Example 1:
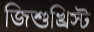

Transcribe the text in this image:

জিশুখ্রিস্ট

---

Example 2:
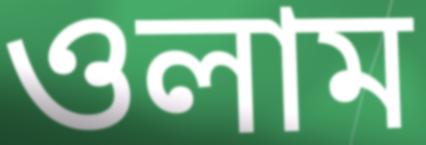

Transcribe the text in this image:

ওলাম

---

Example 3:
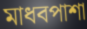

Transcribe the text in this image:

মাধবপাশা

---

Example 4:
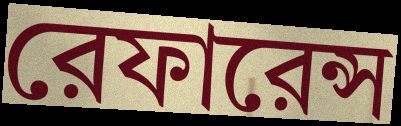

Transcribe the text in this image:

রেফারেন্স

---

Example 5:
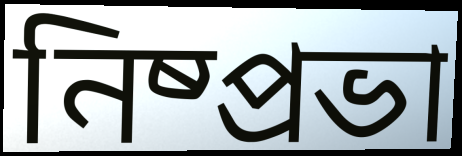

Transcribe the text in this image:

নিষ্প্রভা